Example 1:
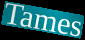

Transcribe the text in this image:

Tames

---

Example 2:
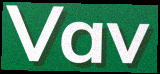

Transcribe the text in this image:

Vav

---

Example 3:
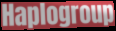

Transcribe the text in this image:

Haplogroup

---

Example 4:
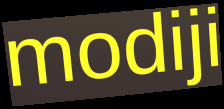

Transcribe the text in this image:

modiji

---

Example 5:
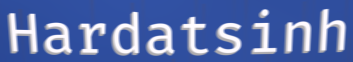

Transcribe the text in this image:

Hardatsinh